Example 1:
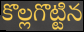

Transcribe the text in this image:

కొల్లగొట్టిన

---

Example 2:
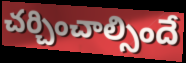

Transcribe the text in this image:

చర్చించాల్సిందే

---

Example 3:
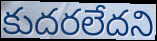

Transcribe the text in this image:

కుదరలేదని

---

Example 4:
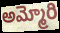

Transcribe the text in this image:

అమ్మోరి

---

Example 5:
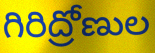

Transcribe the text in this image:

గిరిద్రోణుల